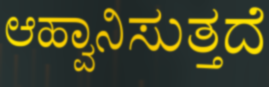
ಆಹ್ವಾನಿಸುತ್ತದೆ